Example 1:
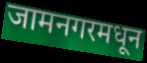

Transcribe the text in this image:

जामनगरमधून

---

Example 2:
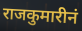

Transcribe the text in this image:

राजकुमारीनं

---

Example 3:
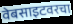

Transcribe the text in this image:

वेबसाइटवरचा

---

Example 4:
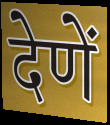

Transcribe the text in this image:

देणें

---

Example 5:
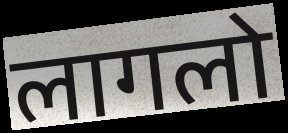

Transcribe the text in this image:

लागलो